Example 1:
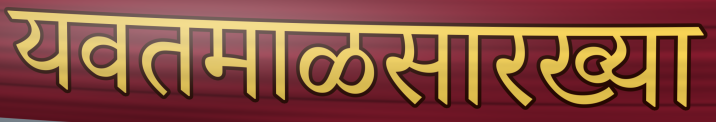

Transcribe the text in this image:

यवतमाळसारख्या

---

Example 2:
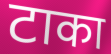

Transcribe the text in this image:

टाका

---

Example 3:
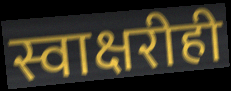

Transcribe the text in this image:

स्वाक्षरीही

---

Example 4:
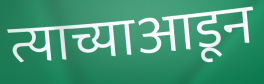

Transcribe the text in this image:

त्याच्याआडून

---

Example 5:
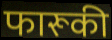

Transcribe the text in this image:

फारूकी